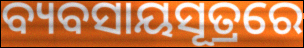
ବ୍ୟବସାୟସୂତ୍ରରେ